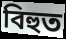
বিহুত